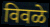
विवळे